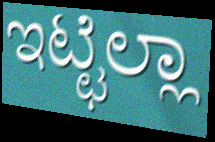
ಇಟ್ಟೆಲ್ಲಾ